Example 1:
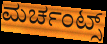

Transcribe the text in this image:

ಮರ್ಚಂಟ್ಸ್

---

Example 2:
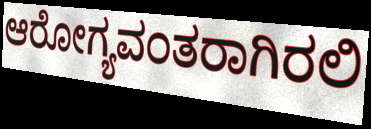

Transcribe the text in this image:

ಆರೋಗ್ಯವಂತರಾಗಿರಲಿ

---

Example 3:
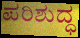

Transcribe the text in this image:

ಪರಿಶುದ್ಧ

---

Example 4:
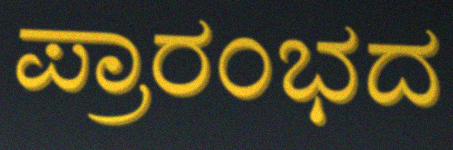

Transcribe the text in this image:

ಪ್ರಾರಂಭದ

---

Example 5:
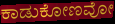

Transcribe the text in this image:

ಕಾಡುಕೋಣವೋ